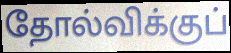
தோல்விக்குப்